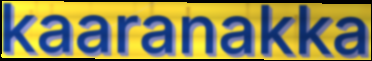
kaaranakka